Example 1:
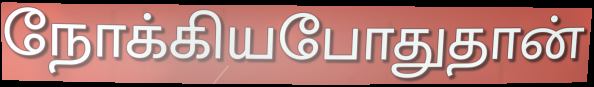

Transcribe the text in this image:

நோக்கியபோதுதான்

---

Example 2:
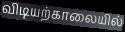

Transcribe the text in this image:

விடியற்காலையில்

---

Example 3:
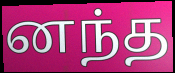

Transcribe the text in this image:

னந்த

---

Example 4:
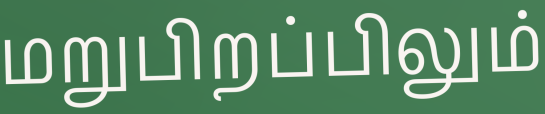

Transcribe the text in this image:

மறுபிறப்பிலும்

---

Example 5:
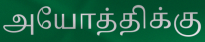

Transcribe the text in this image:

அயோத்திக்கு